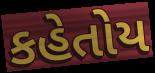
કહેતોય